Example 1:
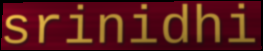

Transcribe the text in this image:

srinidhi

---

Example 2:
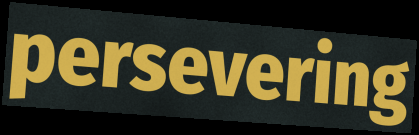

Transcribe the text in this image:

persevering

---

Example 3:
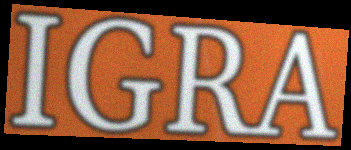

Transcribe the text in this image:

IGRA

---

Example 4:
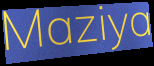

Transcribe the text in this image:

Maziya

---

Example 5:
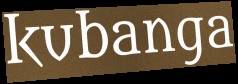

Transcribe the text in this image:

kubanga